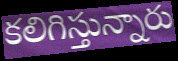
కలిగిస్తున్నారు